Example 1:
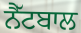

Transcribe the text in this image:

ਨੈੱਟਬਾਲ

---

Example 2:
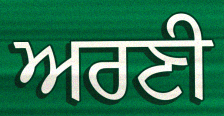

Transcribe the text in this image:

ਅਰਣੀ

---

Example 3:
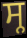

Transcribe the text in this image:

ਸ੍ਨ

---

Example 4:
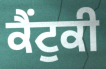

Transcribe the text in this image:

ਕੈਂਟੁਕੀ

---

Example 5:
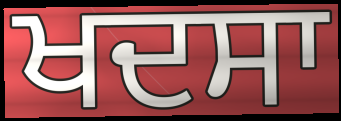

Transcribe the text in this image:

ਖਦਸਾ